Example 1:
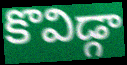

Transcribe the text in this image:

కొవిడ్గా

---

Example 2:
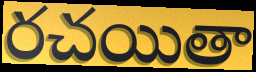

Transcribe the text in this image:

రచయితా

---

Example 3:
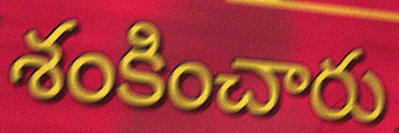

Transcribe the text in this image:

శంకించారు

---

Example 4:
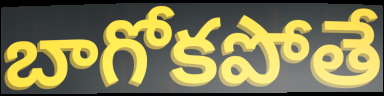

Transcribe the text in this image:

బాగోకపోతే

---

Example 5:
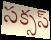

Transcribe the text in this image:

సక్సస్